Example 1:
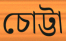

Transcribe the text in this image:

চোট্টা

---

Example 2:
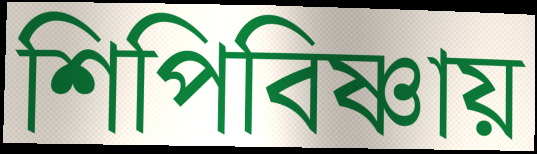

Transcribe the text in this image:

শিপিবিষ্ণায়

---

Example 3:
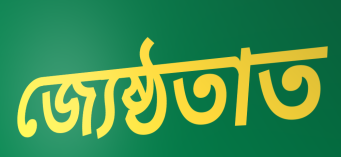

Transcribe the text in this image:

জ্যেষ্ঠতাত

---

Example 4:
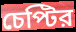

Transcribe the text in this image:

চেপ্টির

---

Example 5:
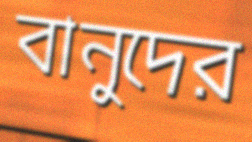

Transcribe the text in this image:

বানুদের